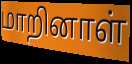
மாறினாள்